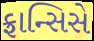
ફ્રાન્સિસે